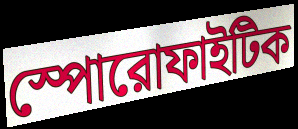
স্পোরোফাইটিক